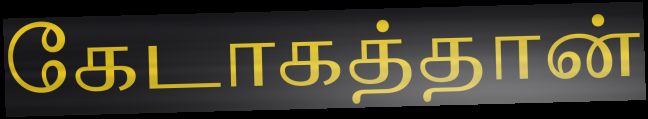
கேடாகத்தான்